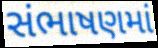
સંભાષણમાં